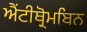
ਐਂਟੀਥ੍ਰੋਮਬਿਨ